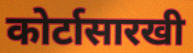
कोर्टासारखी